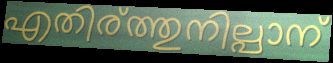
എതിര്ത്തുനില്പാന്